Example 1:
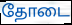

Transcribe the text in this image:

தோடை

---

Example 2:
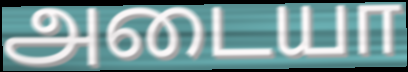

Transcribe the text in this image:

அடையா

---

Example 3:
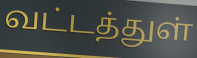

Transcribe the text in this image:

வட்டத்துள்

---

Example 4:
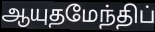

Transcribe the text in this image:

ஆயுதமேந்திப்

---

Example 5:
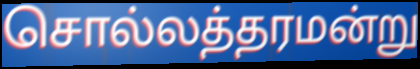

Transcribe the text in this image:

சொல்லத்தரமன்று